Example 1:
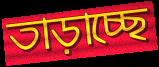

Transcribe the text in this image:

তাড়াচ্ছে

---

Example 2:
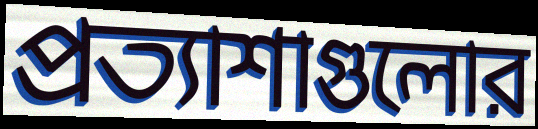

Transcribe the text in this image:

প্রত্যাশাগুলোর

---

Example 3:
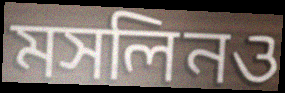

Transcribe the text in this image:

মসলিনও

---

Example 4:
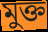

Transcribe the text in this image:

মুক্ত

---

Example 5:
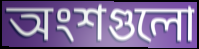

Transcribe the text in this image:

অংশগুলো